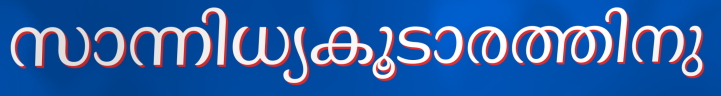
സാന്നിധ്യകൂടാരത്തിനു